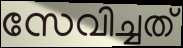
സേവിച്ചത്